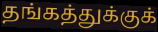
தங்கத்துக்குக்